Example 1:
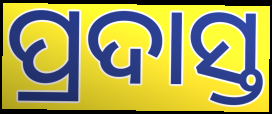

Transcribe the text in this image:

ପ୍ରଦାସ୍ତ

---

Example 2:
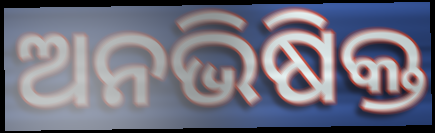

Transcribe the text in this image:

ଅନଭିଷିକ୍ତ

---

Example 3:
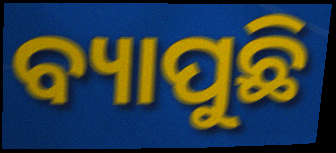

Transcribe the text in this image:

ବ୍ୟାପୁଛି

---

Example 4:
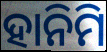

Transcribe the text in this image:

ହାନିମି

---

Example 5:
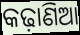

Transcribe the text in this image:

କଢ଼ାଣିଆ